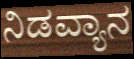
ನಿಡವ್ಯಾನ